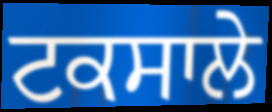
ਟਕਸਾਲੇ